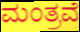
ಮಂತ್ರವೆ